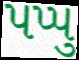
પપ્પુ